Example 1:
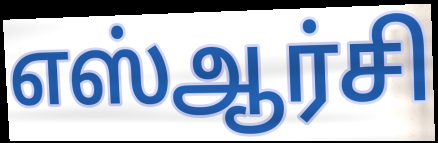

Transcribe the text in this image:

எஸ்ஆர்சி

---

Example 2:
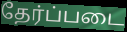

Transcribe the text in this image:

தேர்ப்படை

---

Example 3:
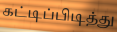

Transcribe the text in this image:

கட்டிப்பிடித்து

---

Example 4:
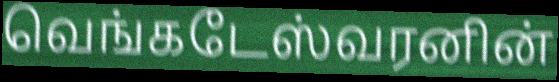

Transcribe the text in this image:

வெங்கடேஸ்வரனின்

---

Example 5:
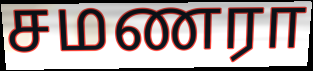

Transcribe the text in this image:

சமணரா